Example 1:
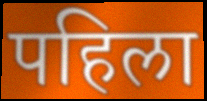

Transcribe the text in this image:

पहिला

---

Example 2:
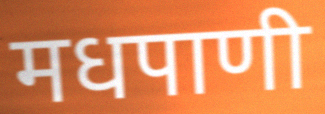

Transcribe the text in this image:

मधपाणी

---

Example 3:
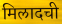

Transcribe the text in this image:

मिलादची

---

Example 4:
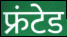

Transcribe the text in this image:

फ्रंटेड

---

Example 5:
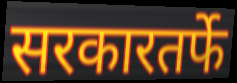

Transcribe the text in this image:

सरकारतर्फे